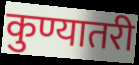
कुण्यातरी